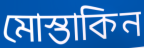
মোস্তাকিন